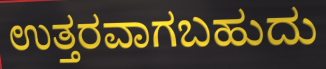
ಉತ್ತರವಾಗಬಹುದು